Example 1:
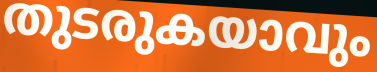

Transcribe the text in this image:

തുടരുകയാവും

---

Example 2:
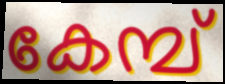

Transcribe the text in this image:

കേമ്പ്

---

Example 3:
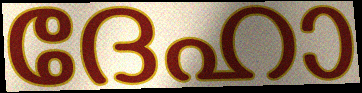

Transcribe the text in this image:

ദേഹാ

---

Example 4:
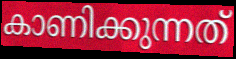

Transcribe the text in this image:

കാണിക്കുന്നത്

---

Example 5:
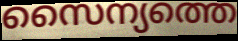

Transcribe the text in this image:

സൈന്യത്തെ